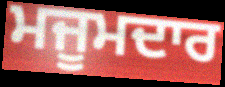
ਮਜੂਮਦਾਰ